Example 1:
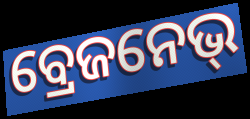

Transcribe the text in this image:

ବ୍ରେଜନେଭ୍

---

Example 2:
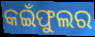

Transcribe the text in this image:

କଇଁଫୁଲର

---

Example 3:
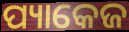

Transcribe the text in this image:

ପ୍ୟାକେଜ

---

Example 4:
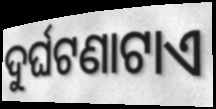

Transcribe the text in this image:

ଦୁର୍ଘଟଣାଟାଏ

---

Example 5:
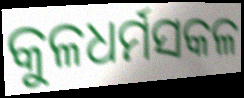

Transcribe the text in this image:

କୁଳଧର୍ମସକଳ